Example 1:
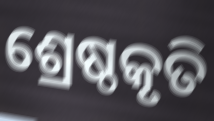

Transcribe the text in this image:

ଶ୍ରେଷ୍ଠକୃତି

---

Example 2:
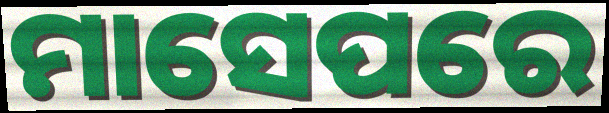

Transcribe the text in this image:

ମାସେପରେ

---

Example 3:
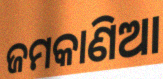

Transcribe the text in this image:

ଜମକାଣିଆ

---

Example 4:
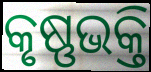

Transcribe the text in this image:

କୃଷ୍ଣଭକ୍ତି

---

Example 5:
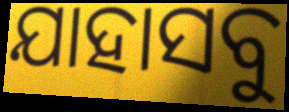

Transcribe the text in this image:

ଯାହାସବୁ